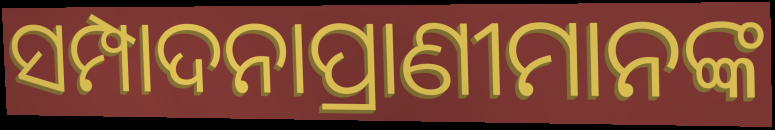
ସମ୍ପାଦନାପ୍ରାଣୀମାନଙ୍କ